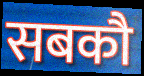
सबकौ